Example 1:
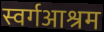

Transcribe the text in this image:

स्वर्गआश्रम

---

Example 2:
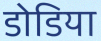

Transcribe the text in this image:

डोडिया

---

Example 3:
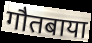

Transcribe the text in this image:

गौतबाया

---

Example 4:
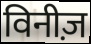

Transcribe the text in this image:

विनीज़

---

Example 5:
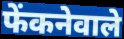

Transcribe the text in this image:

फेंकनेवाले